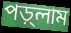
পড়্‌লাম